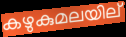
കഴുകുമലയില്